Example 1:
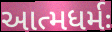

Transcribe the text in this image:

આત્મધર્મઃ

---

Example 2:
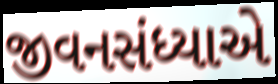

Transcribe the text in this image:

જીવનસંધ્યાએ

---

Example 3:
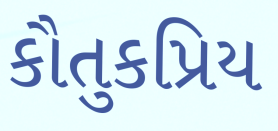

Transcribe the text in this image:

કૌતુકપ્રિય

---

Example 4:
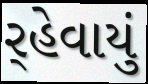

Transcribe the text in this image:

ર્‌હેવાયું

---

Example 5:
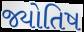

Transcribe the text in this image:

જ્યોતિષ